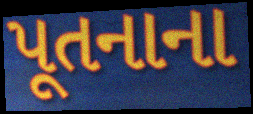
પૂતનાના